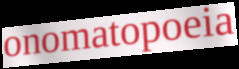
onomatopoeia